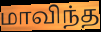
மாவிந்த